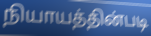
நியாயத்தின்படி